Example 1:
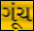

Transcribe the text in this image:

ગૂંચ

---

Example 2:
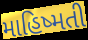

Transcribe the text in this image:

માહિષ્મતી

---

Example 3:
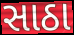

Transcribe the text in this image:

સાઠા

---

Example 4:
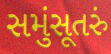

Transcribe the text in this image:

સમુંસૂતરું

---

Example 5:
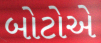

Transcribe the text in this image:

બોટોએ